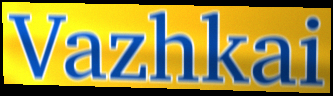
Vazhkai